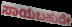
ಸಾಯಬಹುದೇ